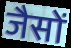
जैसों